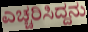
ಎಚ್ಚರಿಸಿದ್ದನು